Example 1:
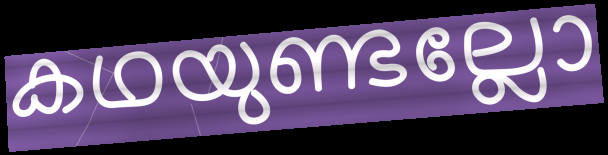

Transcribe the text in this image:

കഥയുണ്ടല്ലോ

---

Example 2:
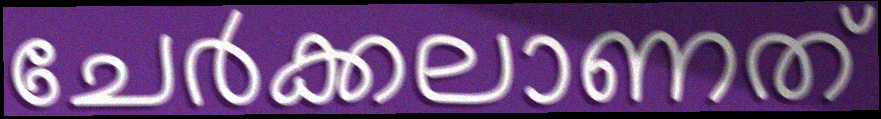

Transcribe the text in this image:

ചേർക്കലാണത്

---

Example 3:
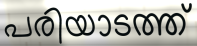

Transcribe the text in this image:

പരിയാടത്ത്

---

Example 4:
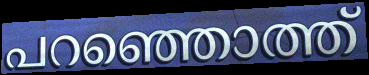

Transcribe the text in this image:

പറഞ്ഞൊത്ത്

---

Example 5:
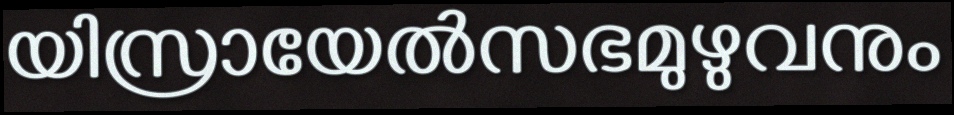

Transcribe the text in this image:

യിസ്രായേൽസഭമുഴുവനും